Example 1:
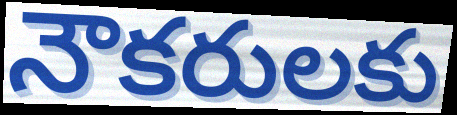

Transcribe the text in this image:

నౌకరులకు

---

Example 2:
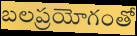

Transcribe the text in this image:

బలప్రయోగంతో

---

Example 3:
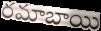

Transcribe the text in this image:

రమాబాయి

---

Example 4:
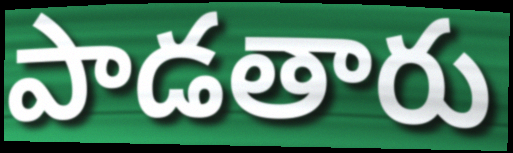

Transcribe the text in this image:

పాడతారు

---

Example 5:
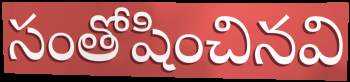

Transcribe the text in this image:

సంతోషించినవి